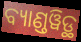
ବ୍ୟାଣ୍ଡୱିଡ୍ଥ